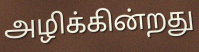
அழிக்கின்றது